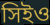
সিইও